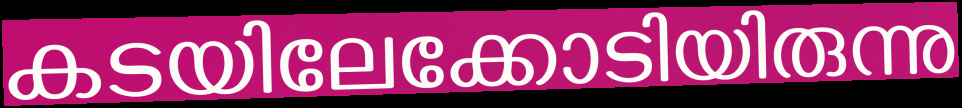
കടയിലേക്കോടിയിരുന്നു